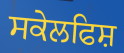
ਸਕੇਲਫਿਸ਼